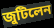
জুটিলেন